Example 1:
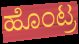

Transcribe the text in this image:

ಹೊಂಟ್ರ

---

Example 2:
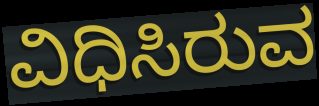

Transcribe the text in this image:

ವಿಧಿಸಿರುವ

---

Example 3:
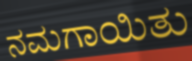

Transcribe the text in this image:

ನಮಗಾಯಿತು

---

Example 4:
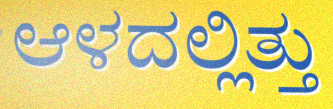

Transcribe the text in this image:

ಆಳದಲ್ಲಿತ್ತು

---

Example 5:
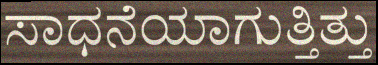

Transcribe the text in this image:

ಸಾಧನೆಯಾಗುತ್ತಿತ್ತು